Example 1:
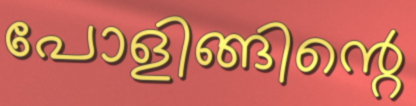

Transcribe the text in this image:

പോളിങ്ങിന്റെ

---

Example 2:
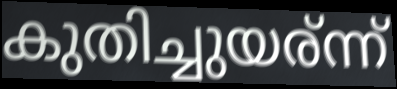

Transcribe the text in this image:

കുതിച്ചുയര്ന്ന്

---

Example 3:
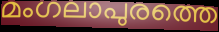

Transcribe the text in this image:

മംഗലാപുരത്തെ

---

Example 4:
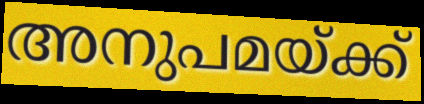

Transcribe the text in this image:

അനുപമയ്ക്ക്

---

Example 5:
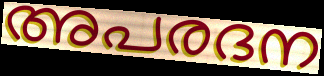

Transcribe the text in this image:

അപരദന